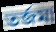
তর্জমা